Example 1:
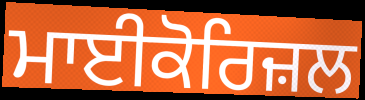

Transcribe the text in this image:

ਮਾਈਕੋਰਿਜ਼ਲ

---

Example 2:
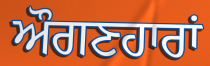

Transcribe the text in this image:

ਔਗਣਹਾਰਾਂ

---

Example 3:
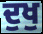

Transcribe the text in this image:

ਦੁਖੁ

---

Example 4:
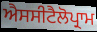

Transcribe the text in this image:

ਐਸਸੀਟੈਲੋਪ੍ਰਾਮ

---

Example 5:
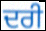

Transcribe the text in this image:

ਦਰੀ